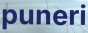
puneri